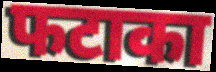
फटाका